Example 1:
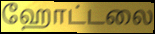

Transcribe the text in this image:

ஹோட்டலை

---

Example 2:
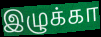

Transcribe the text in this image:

இழுக்கா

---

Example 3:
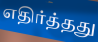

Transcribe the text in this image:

எதிர்த்தது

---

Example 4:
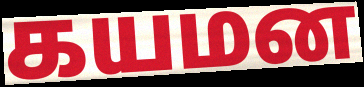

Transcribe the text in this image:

கயமன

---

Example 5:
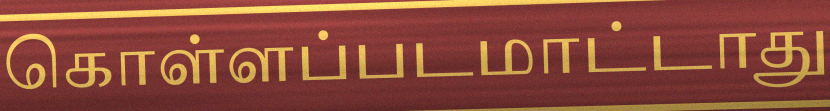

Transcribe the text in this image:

கொள்ளப்படமாட்டாது